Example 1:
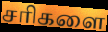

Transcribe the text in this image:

சரிகளை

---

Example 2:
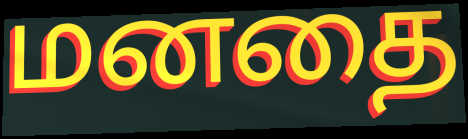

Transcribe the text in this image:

மனதை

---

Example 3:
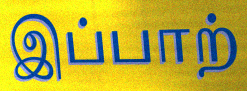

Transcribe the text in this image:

இப்பாற்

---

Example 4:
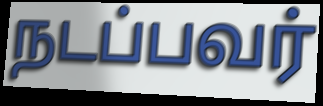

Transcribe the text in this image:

நடப்பவர்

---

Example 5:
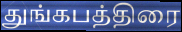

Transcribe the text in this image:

துங்கபத்திரை